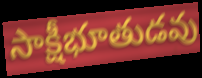
సాక్షీభూతుడవు